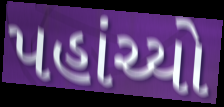
પહાંચ્યો